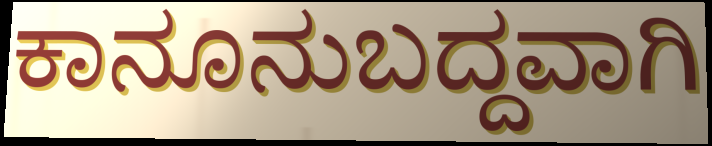
ಕಾನೂನುಬದ್ದವಾಗಿ